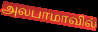
அலபாமாவில்